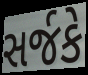
સર્જકે